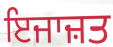
ਇਜਾਜ਼ਤ